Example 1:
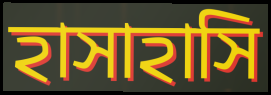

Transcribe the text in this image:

হাসাহাসি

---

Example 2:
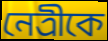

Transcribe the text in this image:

নেত্রীকে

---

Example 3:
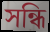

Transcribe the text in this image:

সন্ধি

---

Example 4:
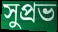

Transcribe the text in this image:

সুপ্রভ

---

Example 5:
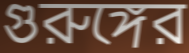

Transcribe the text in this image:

গুরুঙ্গের